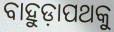
ବାହୁଡ଼ାପଥକୁ